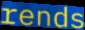
rends